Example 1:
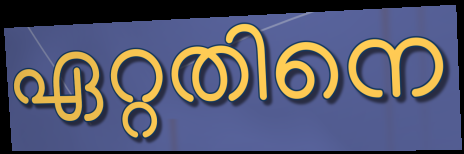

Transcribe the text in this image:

ഏറ്റതിനെ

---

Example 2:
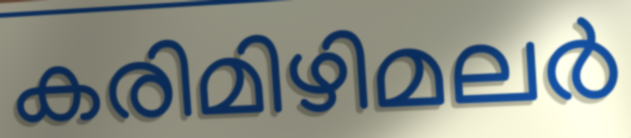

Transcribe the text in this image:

കരിമിഴിമലർ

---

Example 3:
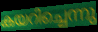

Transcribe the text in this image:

കയറിച്ചെന്നു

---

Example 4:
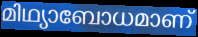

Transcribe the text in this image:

മിഥ്യാബോധമാണ്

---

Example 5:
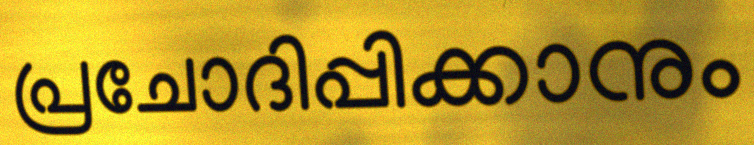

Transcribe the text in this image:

പ്രചോദിപ്പിക്കാനും